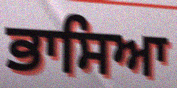
ਭਾਸਿਆ